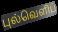
புல்வெளிப்